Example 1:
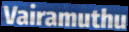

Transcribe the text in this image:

Vairamuthu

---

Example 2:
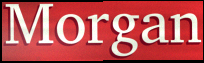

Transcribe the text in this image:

Morgan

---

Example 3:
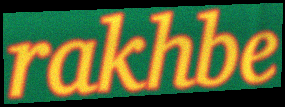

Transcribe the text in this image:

rakhbe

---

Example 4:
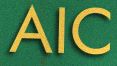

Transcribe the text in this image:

AIC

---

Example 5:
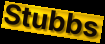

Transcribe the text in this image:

Stubbs